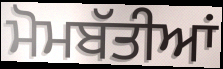
ਮੋਮਬੱਤੀਆਂ